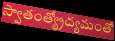
స్వాతంత్య్రోద్యమంతో